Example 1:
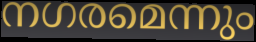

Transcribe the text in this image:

നഗരമെന്നും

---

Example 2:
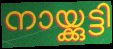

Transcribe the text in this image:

നായ്ക്കുട്ടി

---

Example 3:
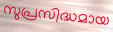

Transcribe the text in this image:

സുപ്രസിദ്ധമായ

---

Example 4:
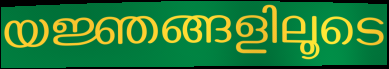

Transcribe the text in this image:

യജ്ഞങ്ങളിലൂടെ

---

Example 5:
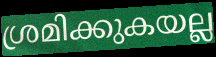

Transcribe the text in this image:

ശ്രമിക്കുകയല്ല